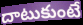
దాటుకుంటే